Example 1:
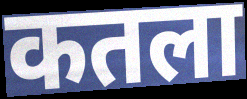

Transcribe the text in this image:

कतला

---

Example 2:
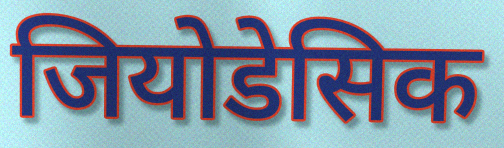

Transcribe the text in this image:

जियोडेसिक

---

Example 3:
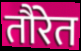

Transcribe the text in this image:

तौरेत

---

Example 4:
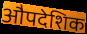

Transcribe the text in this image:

औपदेशिक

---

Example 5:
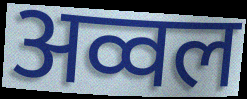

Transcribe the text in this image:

अव्वल